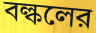
বল্কলের